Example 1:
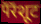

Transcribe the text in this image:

पॅरॅशूट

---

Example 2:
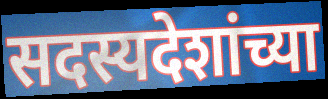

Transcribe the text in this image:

सदस्यदेशांच्या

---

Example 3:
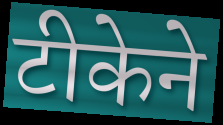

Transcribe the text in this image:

टीकेने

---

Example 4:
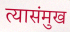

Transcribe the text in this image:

त्यासंमुख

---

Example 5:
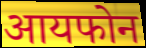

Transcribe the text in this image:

आयफोन